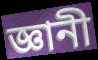
জ্ঞানী